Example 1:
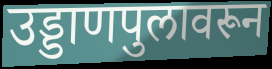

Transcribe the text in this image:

उड्डाणपुलावरून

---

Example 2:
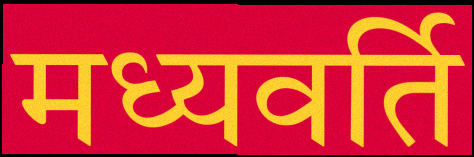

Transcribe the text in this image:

मध्यवर्ति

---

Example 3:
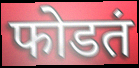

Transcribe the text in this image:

फोडतं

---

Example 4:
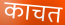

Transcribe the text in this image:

काचत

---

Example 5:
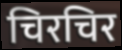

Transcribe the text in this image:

चिरचिर